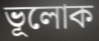
ভূলোক